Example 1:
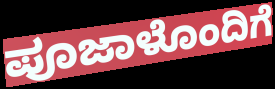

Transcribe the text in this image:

ಪೂಜಾಳೊಂದಿಗೆ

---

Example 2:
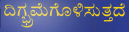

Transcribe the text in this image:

ದಿಗ್ಭ್ರಮೆಗೊಳಿಸುತ್ತದೆ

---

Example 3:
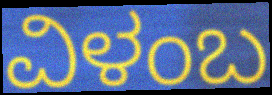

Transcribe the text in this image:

ವಿಳಂಬ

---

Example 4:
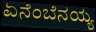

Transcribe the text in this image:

ಏನೆಂಬೆನಯ್ಯ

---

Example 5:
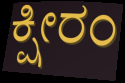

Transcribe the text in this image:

ಕ್ಷೀರಂ